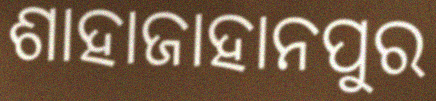
ଶାହାଜାହାନପୁର